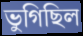
ভুগিছিল